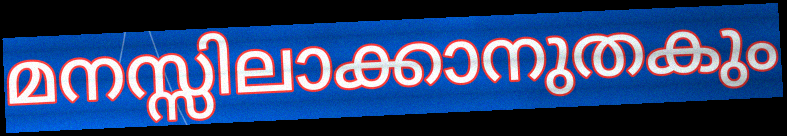
മനസ്സിലാക്കാനുതകും